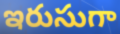
ఇరుసుగా